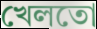
খেলতো